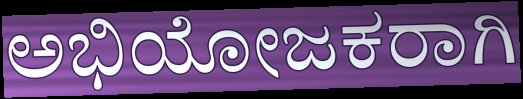
ಅಭಿಯೋಜಕರಾಗಿ